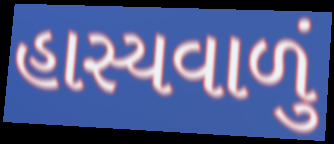
હાસ્યવાળું